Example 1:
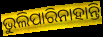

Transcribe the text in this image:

ଭୁଲିପାରିନାହାନ୍ତି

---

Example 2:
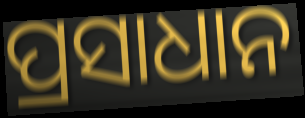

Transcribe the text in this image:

ପ୍ରସାଧାନ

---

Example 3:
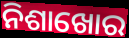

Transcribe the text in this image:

ନିଶାଖୋର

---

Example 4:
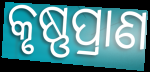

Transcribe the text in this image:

କୃଷ୍ଣପ୍ରାଣ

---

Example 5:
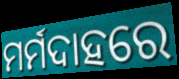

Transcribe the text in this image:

ମର୍ମଦାହରେ